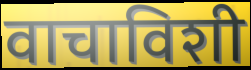
वाचाविशी